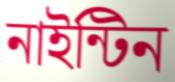
নাইন্টিন